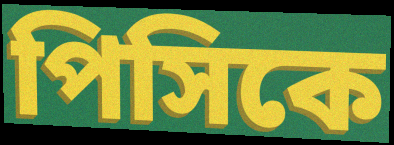
পিসিকে